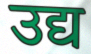
उद्य